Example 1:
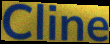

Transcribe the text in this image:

Cline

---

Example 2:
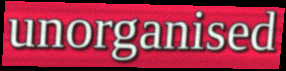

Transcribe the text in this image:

unorganised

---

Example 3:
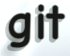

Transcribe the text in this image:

git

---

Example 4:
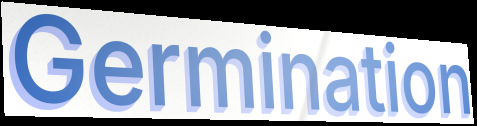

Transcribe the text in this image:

Germination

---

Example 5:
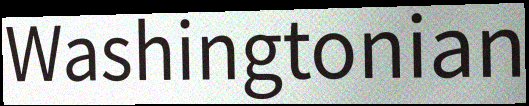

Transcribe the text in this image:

Washingtonian